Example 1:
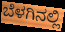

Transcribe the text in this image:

ಬೆಳಗಿನಲ್ಲಿ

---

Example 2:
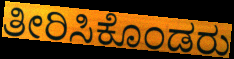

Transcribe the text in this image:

ತೀರಿಸಿಕೊಂಡರು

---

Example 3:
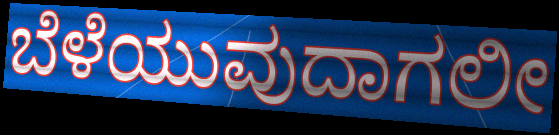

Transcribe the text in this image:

ಬೆಳೆಯುವುದಾಗಲೀ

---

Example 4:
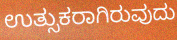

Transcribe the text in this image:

ಉತ್ಸುಕರಾಗಿರುವುದು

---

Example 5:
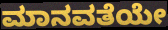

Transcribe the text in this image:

ಮಾನವತೆಯೇ